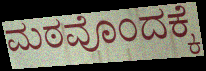
ಮಠವೊಂದಕ್ಕೆ